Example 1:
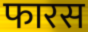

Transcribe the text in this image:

फारस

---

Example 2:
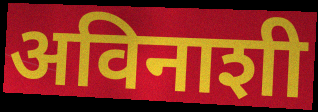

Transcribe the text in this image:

अविनाशी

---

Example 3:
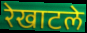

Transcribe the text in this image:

रेखाटले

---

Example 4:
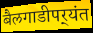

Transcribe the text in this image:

बैलगाडीपर्यंत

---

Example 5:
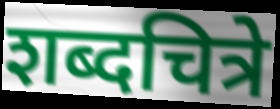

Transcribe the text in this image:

शब्दचित्रे